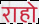
राहो